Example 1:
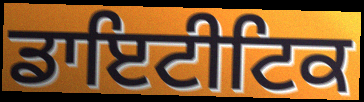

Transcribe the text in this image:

ਡਾਇਟੀਟਿਕ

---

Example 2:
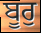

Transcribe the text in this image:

ਬੂਰੁ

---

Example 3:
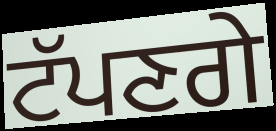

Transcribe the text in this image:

ਟੱਪਣਗੇ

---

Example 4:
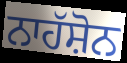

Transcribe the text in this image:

ਨਾਹੱਸ਼ੋਨ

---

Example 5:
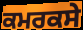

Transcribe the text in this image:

ਕਮਰਕਸੇ